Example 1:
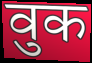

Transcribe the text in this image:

वुक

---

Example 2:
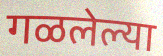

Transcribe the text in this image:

गळलेल्या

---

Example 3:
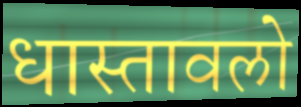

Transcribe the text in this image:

धास्तावलो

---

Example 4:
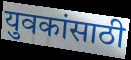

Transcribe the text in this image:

युवकांसाठी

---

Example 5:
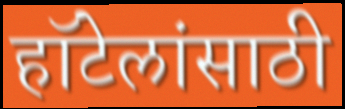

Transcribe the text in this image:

हॉटेलांसाठी